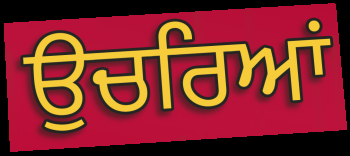
ਉਚਰਿਆਂ